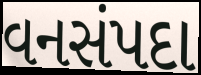
વનસંપદા